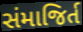
સંમાજિર્ત